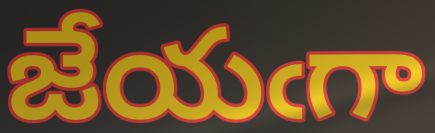
జేయఁగా